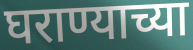
घराण्याच्या